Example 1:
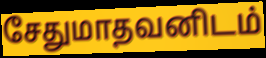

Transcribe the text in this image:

சேதுமாதவனிடம்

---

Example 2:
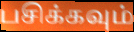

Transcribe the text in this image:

பசிக்கவும்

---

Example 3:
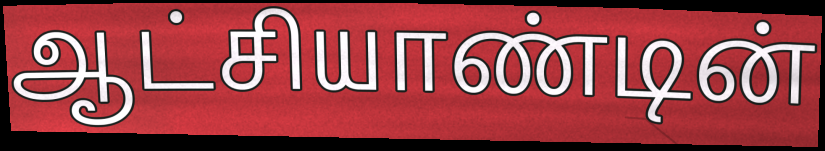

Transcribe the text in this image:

ஆட்சியாண்டின்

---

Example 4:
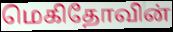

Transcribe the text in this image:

மெகிதோவின்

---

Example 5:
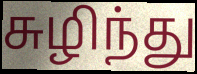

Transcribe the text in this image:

சுழிந்து